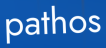
pathos